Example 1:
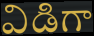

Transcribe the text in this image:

విడిగా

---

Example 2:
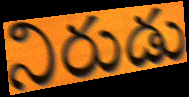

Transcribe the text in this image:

నిరుడు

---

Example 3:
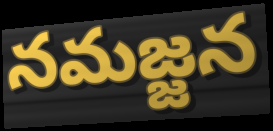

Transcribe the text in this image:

నమజ్జన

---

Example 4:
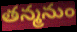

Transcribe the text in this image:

తన్మనుం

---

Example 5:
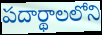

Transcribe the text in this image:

పదార్థాలలోని